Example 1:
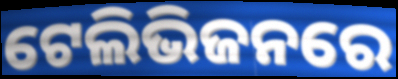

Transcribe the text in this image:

ଟେଲିଭିଜନରେ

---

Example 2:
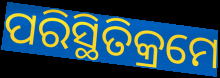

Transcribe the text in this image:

ପରିସ୍ଥିତିକ୍ରମେ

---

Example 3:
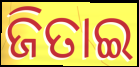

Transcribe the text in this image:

ଜିତାଇ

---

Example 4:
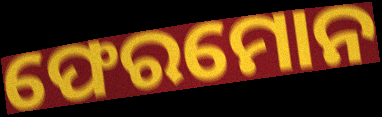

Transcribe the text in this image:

ଫେରମୋନ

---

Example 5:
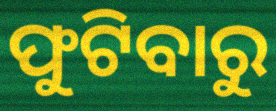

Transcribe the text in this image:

ଫୁଟିବାରୁ